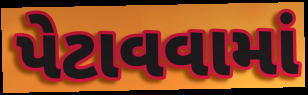
પેટાવવામાં